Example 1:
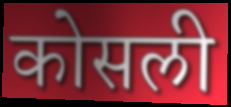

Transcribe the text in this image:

कोसली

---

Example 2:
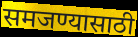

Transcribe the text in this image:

समजण्यासाठी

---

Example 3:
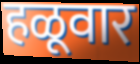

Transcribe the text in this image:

हळूवार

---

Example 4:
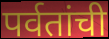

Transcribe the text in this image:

पर्वतांची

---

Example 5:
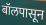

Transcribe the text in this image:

बॉलपासून